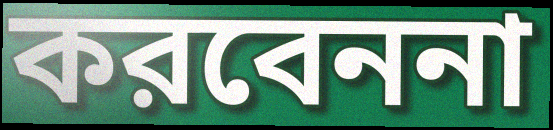
করবেননা